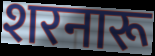
शरनारू